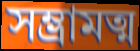
সম্ভ্রামত্ম